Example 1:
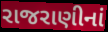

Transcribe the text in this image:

રાજરાણીનાં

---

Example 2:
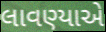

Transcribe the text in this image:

લાવણ્યાએ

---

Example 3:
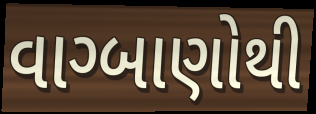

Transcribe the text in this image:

વાગ્બાણોથી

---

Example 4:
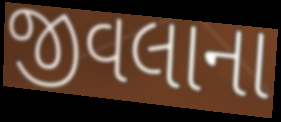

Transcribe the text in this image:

જીવલાના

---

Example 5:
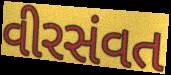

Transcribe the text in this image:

વીરસંવત